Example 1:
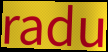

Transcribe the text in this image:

radu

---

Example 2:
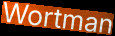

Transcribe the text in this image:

Wortman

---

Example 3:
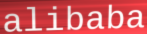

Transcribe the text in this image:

alibaba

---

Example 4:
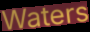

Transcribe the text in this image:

Waters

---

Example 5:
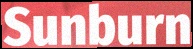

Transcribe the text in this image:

Sunburn